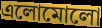
এলোমোলো